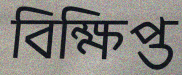
বিক্ষিপ্ত